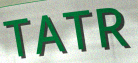
TATR